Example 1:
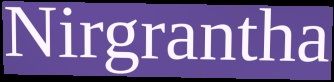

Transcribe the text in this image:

Nirgrantha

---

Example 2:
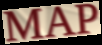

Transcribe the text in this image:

MAP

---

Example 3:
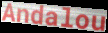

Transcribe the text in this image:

Andalou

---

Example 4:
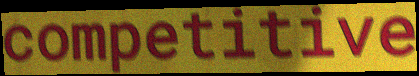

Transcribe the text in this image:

competitive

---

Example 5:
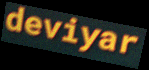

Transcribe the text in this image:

deviyar